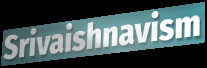
Srivaishnavism